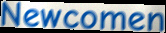
Newcomen